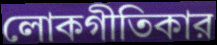
লোকগীতিকার